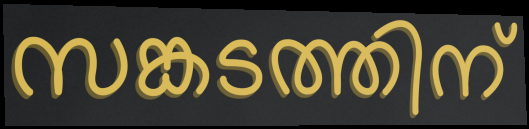
സങ്കടത്തിന്